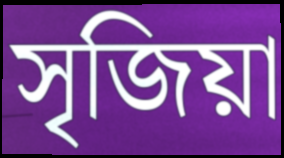
সৃজিয়া